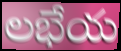
లభేయ